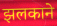
झलकाने